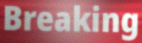
Breaking